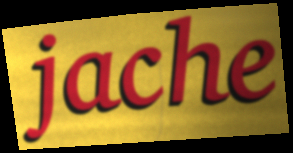
jache